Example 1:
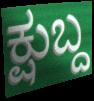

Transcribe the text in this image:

ಕ್ಷುಬ್ದ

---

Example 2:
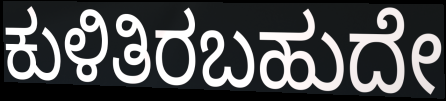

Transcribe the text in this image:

ಕುಳಿತಿರಬಹುದೇ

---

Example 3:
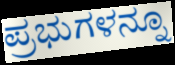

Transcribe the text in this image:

ಪ್ರಭುಗಳನ್ನೂ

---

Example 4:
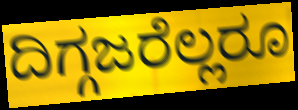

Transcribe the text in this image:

ದಿಗ್ಗಜರೆಲ್ಲರೂ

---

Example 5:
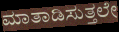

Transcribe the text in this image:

ಮಾತಾಡಿಸುತ್ತಲೇ